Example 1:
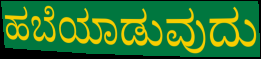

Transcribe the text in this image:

ಹಬೆಯಾಡುವುದು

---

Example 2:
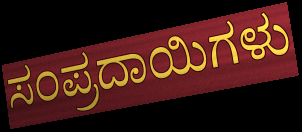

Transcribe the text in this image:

ಸಂಪ್ರದಾಯಿಗಳು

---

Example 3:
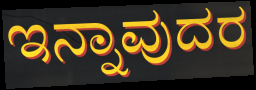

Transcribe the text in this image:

ಇನ್ನಾವುದರ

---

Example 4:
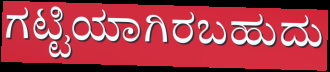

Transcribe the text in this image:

ಗಟ್ಟಿಯಾಗಿರಬಹುದು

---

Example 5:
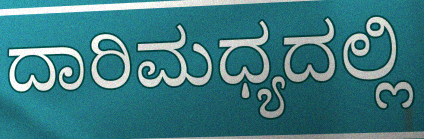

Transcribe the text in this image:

ದಾರಿಮಧ್ಯದಲ್ಲಿ